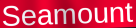
Seamount